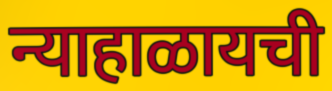
न्याहाळायची